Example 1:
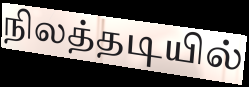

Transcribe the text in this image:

நிலத்தடியில்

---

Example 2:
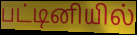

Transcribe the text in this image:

பட்டினியில்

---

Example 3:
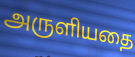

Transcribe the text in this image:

அருளியதை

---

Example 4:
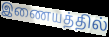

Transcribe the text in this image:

இணையத்தில்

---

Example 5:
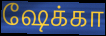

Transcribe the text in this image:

ஷேக்கா